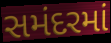
સમંદરમાં